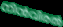
നിൻവിരൽ